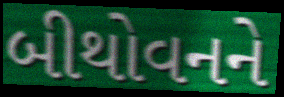
બીથોવનને